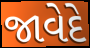
જાવેદે